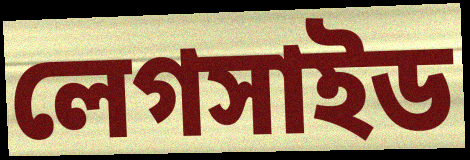
লেগসাইড